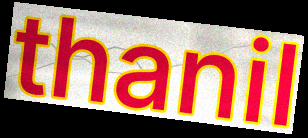
thanil